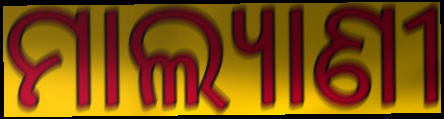
ମାଲ୍ୟାଣୀ